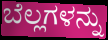
ಬೆಲ್ಲಗಳನ್ನು